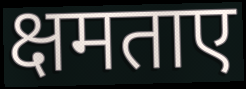
क्षमताए